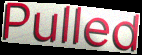
Pulled